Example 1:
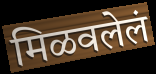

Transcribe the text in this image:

मिळवलेलं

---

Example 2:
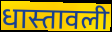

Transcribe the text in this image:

धास्तावली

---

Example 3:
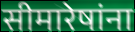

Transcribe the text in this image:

सीमारेषांना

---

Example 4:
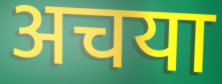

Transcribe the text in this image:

अचया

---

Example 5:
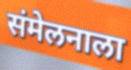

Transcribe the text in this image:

संमेलनाला